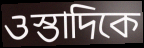
ওস্তাদিকে